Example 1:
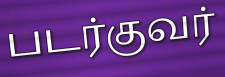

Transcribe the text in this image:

படர்குவர்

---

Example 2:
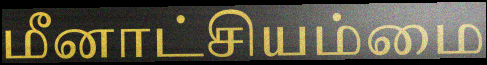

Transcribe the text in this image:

மீனாட்சியம்மை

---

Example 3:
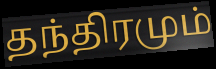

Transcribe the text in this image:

தந்திரமும்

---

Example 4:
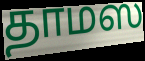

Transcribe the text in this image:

தாமஸ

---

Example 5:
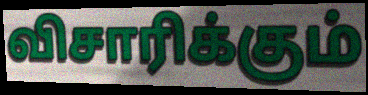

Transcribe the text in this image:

விசாரிக்கும்